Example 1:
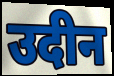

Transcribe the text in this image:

उदीन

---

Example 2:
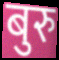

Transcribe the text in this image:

बुरु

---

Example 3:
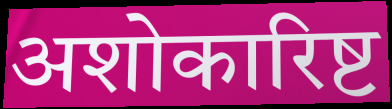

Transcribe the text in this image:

अशोकारिष्ट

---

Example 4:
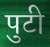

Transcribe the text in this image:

पुटी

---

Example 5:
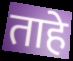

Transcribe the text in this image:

ताहे